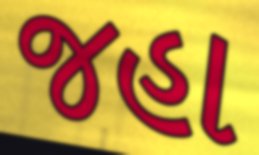
જહા